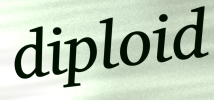
diploid